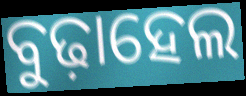
ବୁଢ଼ାହେଲ